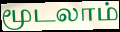
மூடலாம்